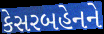
કેસરબહેનને